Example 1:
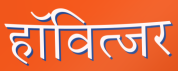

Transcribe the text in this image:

हॉवित्जर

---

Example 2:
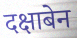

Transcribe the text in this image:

दक्षाबेन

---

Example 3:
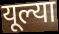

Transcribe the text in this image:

यूल्या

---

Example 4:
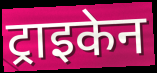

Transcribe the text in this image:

ट्राइकेन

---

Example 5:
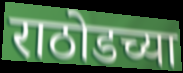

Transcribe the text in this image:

राठोडच्या